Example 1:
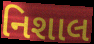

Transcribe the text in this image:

નિશાલ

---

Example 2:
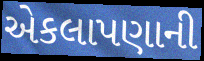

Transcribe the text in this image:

એકલાપણાની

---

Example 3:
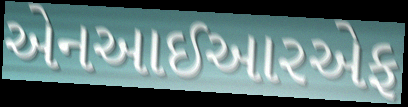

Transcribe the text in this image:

એનઆઈઆરએફ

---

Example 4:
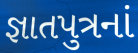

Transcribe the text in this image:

જ્ઞાતપુત્રનાં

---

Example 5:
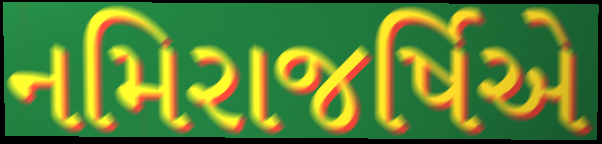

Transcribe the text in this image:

નમિરાજર્ષિએ